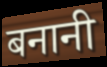
बनानी